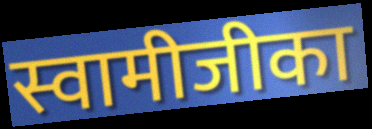
स्वामीजीका